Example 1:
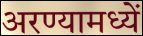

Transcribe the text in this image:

अरण्यामध्यें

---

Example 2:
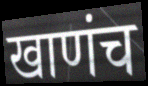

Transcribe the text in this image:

खाणंच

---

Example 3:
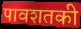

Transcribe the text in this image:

पावशतकी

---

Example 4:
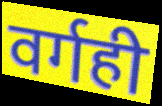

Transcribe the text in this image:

वर्गही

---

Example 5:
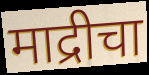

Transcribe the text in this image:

माद्रीचा